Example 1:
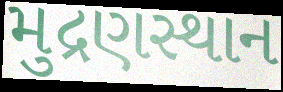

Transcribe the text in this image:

મુદ્રણસ્થાન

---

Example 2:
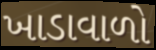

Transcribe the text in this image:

ખાડાવાળો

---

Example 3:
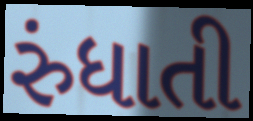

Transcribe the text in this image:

રુંધાતી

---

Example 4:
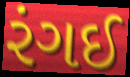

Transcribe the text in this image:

રંગઈ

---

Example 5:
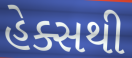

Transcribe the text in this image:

હેક્સથી